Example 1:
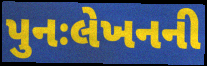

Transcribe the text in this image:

પુનઃલેખનની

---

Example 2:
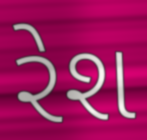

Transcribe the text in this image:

રેશ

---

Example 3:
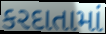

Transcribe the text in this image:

કરદાતામાં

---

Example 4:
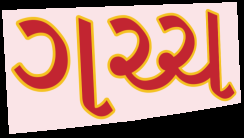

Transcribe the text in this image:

ગચ્ચ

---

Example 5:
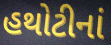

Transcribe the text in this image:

હથોટીનાં